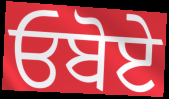
ਓਬੋਏ